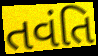
તવંતિ